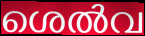
ശെൽവ